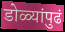
डोळ्यांपुढं